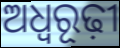
ଅଧ୍ଵରୂଢ଼ୀ